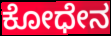
ಕೋಧೇನ